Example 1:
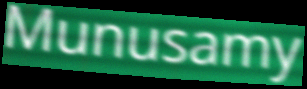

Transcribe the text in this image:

Munusamy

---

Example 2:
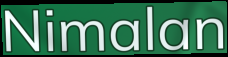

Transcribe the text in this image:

Nimalan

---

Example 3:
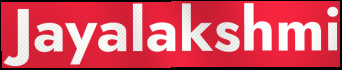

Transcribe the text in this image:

Jayalakshmi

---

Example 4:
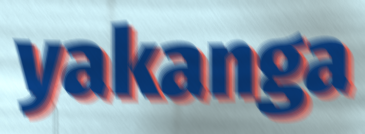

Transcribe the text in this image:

yakanga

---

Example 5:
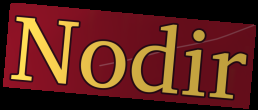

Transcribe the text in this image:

Nodir